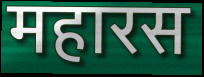
महारस